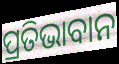
ପ୍ରତିଭାବାନ